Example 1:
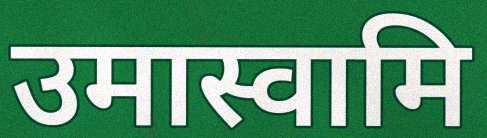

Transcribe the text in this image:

उमास्वामि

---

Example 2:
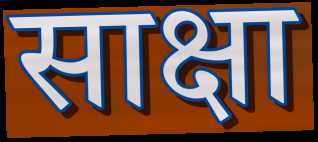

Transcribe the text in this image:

साक्षा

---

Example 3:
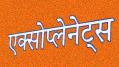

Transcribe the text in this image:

एक्सोप्लेनेट्स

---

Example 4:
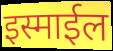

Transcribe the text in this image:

इस्माईल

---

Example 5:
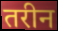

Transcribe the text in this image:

तरीन